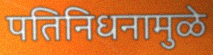
पतिनिधनामुळे